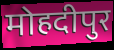
मोहदीपुर